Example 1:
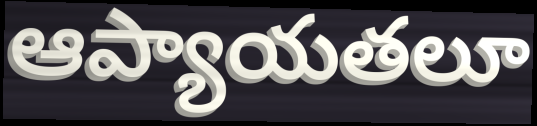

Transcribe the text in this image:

ఆప్యాయతలూ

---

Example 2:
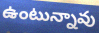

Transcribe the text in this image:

ఉంటున్నావు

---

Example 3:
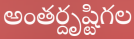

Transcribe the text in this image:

అంతర్దృష్టిగల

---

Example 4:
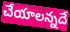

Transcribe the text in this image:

చేయాలన్నదే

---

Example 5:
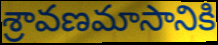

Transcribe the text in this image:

శ్రావణమాసానికి